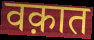
वक़ात